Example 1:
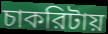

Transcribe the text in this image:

চাকরিটায়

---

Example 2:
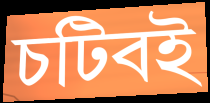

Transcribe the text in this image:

চটিবই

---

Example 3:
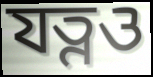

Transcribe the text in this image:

যত্নও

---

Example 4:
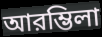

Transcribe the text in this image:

আরম্ভিলা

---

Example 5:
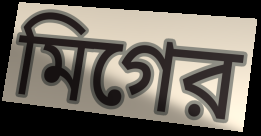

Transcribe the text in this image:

মিগের